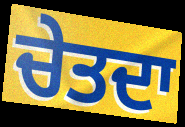
ਚੇਤਦਾ